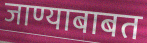
जाण्याबाबत